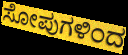
ಸೋಪುಗಳಿಂದ